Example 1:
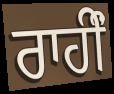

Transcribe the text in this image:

ਰਾਹੀਂੰ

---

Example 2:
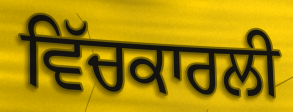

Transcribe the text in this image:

ਵਿੱਚਕਾਰਲੀ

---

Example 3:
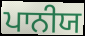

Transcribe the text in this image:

ਪਾਨੀਯ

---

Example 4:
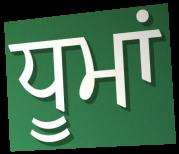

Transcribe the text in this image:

ਧੂਮਾਂ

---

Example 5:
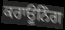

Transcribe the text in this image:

ਕਰਾਊਨਿੰਗ